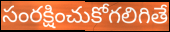
సంరక్షించుకోగలిగితే